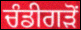
ਚੰਡੀਗੜੋਂ